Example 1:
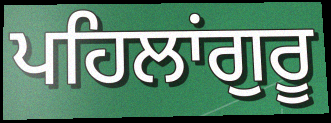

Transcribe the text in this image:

ਪਹਿਲਾਂਗੁਰੂ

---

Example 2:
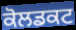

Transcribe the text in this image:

ਕੋਲਡਕਟ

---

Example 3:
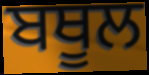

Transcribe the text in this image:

ਬਥੂਲ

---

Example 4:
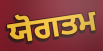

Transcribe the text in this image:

ਯੋਗਤਮ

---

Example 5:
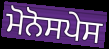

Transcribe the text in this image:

ਮੋਨੋਸਪੇਸ